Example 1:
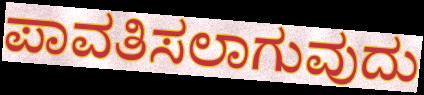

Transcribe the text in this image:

ಪಾವತಿಸಲಾಗುವುದು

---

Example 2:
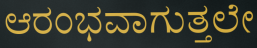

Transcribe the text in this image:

ಆರಂಭವಾಗುತ್ತಲೇ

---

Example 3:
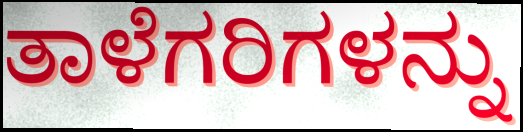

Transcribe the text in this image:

ತಾಳೆಗರಿಗಳನ್ನು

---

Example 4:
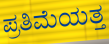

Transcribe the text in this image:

ಪ್ರತಿಮೆಯತ್ತ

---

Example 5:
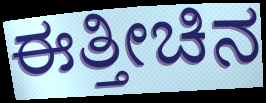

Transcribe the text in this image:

ಈತ್ತೀಚಿನ